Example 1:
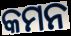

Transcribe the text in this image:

କମନ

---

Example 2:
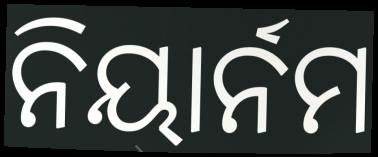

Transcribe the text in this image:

ନିୟାର୍ନମ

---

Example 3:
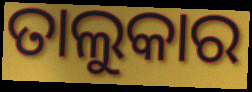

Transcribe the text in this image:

ତାଲୁକାର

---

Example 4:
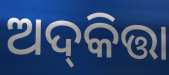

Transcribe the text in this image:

ଅଦ୍‌କିତ୍ତା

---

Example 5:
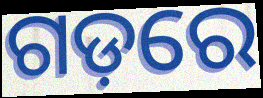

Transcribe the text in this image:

ଗଡ଼ରେ